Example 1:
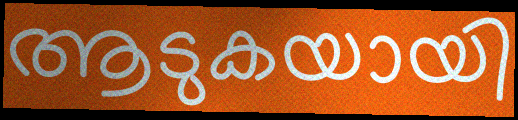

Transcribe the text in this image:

ആടുകയായി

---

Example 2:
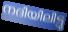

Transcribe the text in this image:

നദിയിലിട്ടു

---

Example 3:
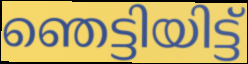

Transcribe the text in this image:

ഞെട്ടിയിട്ട്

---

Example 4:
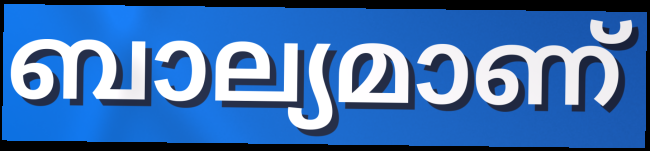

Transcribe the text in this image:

ബാല്യമാണ്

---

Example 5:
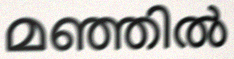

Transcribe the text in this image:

മഞ്ഞിൽ